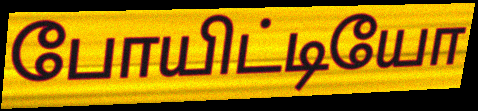
போயிட்டியோ